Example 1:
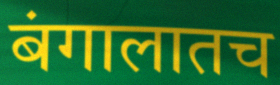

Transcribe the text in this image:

बंगालातच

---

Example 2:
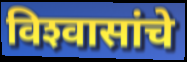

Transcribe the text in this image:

विश्‍वासांचे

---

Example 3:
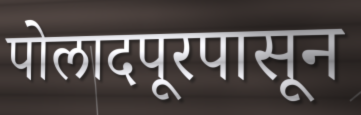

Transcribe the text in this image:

पोलादपूरपासून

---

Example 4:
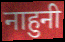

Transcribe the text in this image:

नाहुनी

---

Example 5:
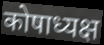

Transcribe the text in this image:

कोषाध्यक्ष